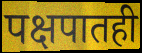
पक्षपातही